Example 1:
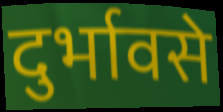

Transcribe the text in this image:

दुर्भावसे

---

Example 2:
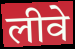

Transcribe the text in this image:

लीवे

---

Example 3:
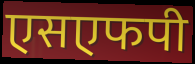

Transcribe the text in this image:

एसएफपी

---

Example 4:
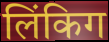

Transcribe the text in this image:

लिंकिग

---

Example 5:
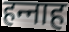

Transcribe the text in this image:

हन्नाह